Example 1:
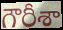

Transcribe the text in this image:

గౌరీశా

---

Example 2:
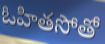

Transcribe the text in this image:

ఓహితసోతో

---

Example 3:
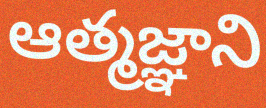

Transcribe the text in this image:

ఆత్మజ్ఞాని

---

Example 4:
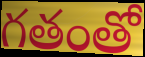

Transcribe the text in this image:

గతంతో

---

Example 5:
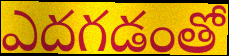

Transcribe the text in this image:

ఎదగడంతో